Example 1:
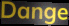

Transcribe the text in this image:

Dange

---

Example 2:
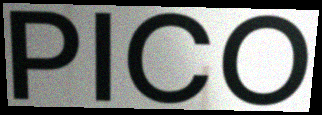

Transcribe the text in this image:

PICO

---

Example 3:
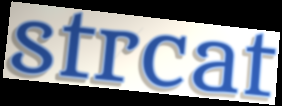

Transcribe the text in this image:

strcat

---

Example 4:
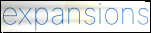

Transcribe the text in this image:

expansions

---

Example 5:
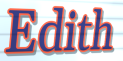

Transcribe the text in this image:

Edith